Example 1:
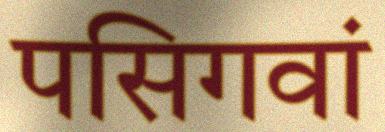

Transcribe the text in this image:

पसिगवां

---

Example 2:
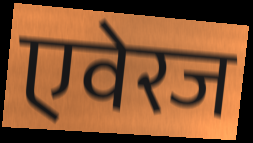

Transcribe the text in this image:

एवेरज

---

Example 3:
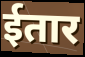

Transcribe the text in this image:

ईतार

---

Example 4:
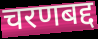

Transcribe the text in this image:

चरणबद्द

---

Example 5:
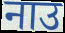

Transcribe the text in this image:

नाउ